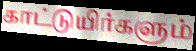
காட்டுயிர்களும்